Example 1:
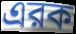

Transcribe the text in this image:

এরক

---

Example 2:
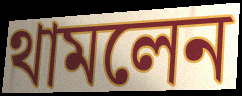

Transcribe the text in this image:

থামলেন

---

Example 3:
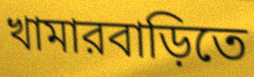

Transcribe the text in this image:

খামারবাড়িতে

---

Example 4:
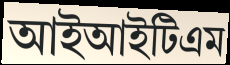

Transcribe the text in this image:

আইআইটিএম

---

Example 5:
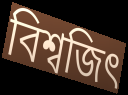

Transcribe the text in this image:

বিশ্বজিৎ